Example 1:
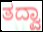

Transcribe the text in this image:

ತದ್ವಾ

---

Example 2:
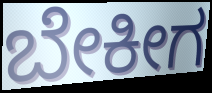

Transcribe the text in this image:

ಬೇಕೀಗ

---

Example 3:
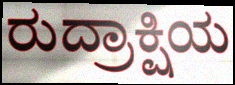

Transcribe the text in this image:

ರುದ್ರಾಕ್ಷಿಯ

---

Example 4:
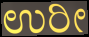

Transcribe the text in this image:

ಉರೀ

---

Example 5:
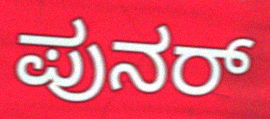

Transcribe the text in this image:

ಪುನರ್